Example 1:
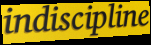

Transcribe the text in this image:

indiscipline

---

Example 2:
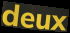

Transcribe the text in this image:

deux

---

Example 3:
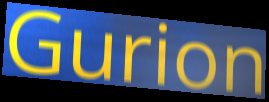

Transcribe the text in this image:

Gurion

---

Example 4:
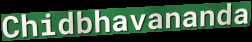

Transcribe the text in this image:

Chidbhavananda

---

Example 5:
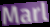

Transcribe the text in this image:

Marl